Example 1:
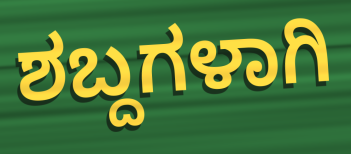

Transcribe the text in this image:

ಶಬ್ದಗಳಾಗಿ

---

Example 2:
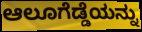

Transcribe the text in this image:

ಆಲೂಗೆಡ್ಡೆಯನ್ನು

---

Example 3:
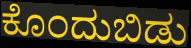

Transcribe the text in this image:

ಕೊಂದುಬಿಡು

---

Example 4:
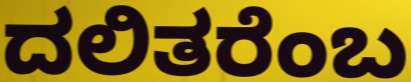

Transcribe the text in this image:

ದಲಿತರೆಂಬ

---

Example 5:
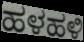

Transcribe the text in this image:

ಹಳಹಳಿ